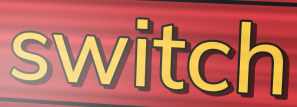
switch